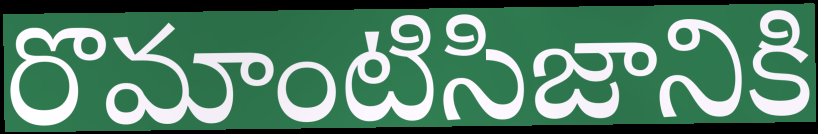
రొమాంటిసిజానికి